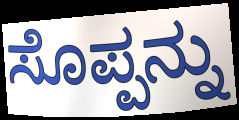
ಸೊಪ್ಪನ್ನು